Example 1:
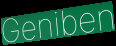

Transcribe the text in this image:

Geniben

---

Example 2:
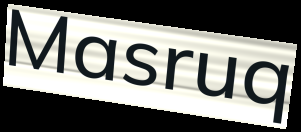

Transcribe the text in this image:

Masruq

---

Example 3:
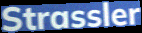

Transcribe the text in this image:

Strassler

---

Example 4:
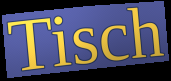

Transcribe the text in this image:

Tisch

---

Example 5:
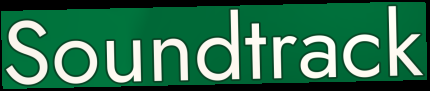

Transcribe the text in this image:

Soundtrack